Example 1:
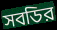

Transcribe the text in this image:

সবডির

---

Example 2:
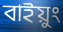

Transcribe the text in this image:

বাইয়ুং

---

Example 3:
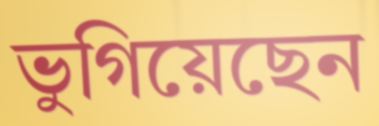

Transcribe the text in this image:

ভুগিয়েছেন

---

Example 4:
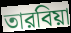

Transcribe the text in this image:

তারবিয়া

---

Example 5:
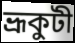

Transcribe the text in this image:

ভ্রূকুটী